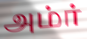
அம்ர்